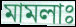
মামলাঃ